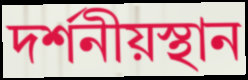
দর্শনীয়স্থান